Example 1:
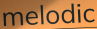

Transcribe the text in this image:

melodic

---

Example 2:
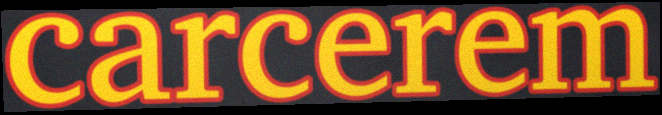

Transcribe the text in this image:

carcerem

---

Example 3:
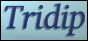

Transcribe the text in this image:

Tridip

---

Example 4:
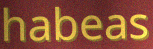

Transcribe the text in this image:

habeas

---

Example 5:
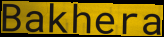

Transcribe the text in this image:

Bakhera